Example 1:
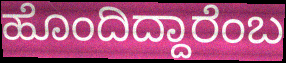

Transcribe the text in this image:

ಹೊಂದಿದ್ದಾರೆಂಬ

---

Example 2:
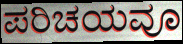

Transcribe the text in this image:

ಪರಿಚಯವೂ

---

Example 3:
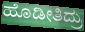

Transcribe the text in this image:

ಹೊಡೀತಿದ್ರು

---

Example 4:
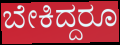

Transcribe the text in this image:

ಬೇಕಿದ್ದರೂ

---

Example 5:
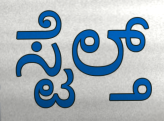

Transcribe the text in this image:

ಸ್ಟೆಲ್ತ್